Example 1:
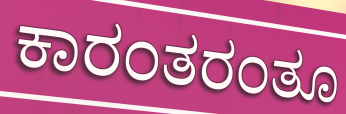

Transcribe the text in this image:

ಕಾರಂತರಂತೂ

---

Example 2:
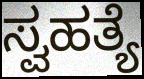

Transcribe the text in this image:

ಸ್ವಹತ್ಯೆ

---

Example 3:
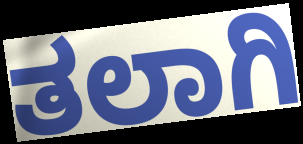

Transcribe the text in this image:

ತಲಾಗಿ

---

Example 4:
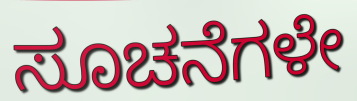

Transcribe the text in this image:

ಸೂಚನೆಗಳೇ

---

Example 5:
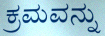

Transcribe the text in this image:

ಕ್ರಮವನ್ನು